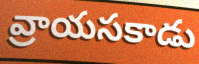
వ్రాయసకాడు